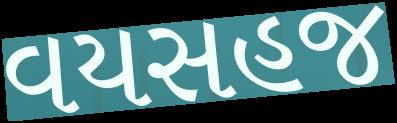
વયસહજ